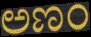
ಅಣಂ